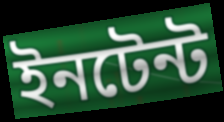
ইনটেন্ট